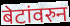
बेटांवरुन